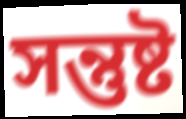
সন্তুষ্ট